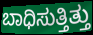
ಬಾಧಿಸುತ್ತಿತ್ತು